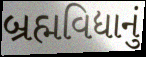
બ્રહ્મવિદ્યાનું